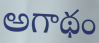
అగాథం